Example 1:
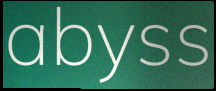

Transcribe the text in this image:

abyss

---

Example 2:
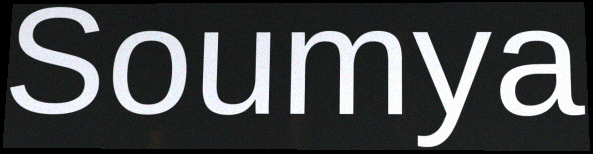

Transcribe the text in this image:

Soumya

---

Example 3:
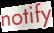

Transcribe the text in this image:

notify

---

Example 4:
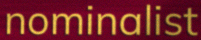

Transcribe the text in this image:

nominalist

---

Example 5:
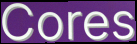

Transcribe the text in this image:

Cores